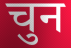
चुन